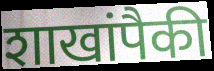
शाखांपैकी